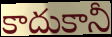
కాదుకానీ